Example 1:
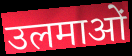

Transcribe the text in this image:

उलमाओं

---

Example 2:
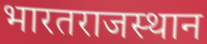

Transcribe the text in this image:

भारतराजस्थान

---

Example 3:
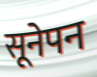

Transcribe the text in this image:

सूनेपन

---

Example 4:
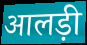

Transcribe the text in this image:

आलड़ी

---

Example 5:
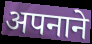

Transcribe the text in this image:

अपनाने